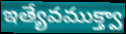
ఇత్యేవముక్త్వా